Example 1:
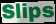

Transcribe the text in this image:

Slips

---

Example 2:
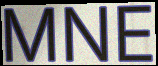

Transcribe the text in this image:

MNE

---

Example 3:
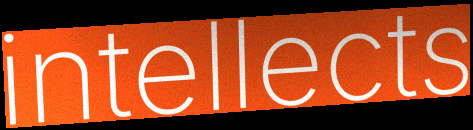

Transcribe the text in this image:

intellects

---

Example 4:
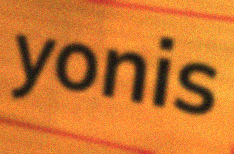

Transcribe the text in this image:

yonis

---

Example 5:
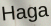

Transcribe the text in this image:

Haga